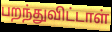
பறந்துவிட்டாள்